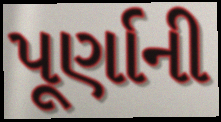
પૂર્ણાની